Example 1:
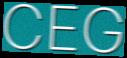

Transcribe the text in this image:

CEG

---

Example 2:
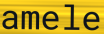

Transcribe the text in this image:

amele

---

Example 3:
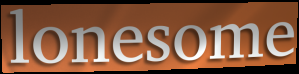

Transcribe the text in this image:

lonesome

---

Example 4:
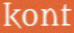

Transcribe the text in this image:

kont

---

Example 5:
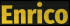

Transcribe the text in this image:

Enrico